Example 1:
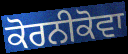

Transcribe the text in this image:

ਕੋਰਨੀਕੋਵਾ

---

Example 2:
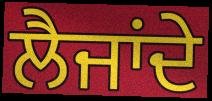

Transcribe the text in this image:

ਲੈਜਾਂਦੇ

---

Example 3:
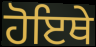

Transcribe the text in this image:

ਹੋਇਥੇ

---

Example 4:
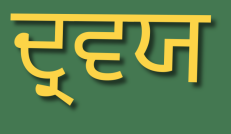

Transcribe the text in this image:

ਦ੍ਰਵਯ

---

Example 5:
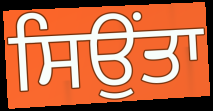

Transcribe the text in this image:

ਸਿਉਂਤਾ